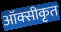
ऑक्सीकृत